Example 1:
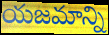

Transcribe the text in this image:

యజమాన్ని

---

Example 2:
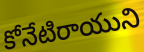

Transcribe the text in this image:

కోనేటిరాయుని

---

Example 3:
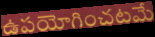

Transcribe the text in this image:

ఉపయోగించటమే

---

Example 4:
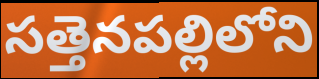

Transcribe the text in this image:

సత్తెనపల్లిలోని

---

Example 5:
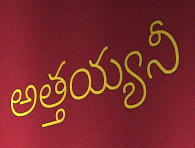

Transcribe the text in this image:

అత్తయ్యనీ